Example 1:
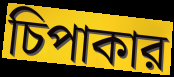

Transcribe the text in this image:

চিপাকার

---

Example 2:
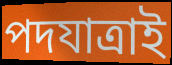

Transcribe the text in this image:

পদযাত্রাই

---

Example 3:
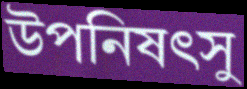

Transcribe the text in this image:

উপনিষৎসু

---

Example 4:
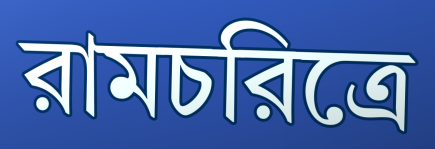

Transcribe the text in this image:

রামচরিত্রে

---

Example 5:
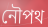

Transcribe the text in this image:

নৌপথ